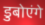
डुबोएंगे